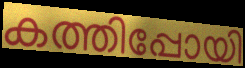
കത്തിപ്പോയി